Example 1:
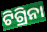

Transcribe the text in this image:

ଟିଗ୍ରିନା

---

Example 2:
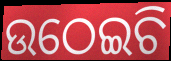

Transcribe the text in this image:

ଉଠେଇଚି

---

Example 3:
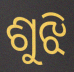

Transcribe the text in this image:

ଶୁଝି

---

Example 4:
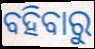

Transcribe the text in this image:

ବହିବାରୁ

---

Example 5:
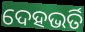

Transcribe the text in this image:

ଦେହଭର୍ତି